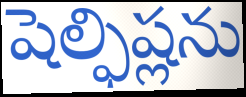
షెల్ఫిష్లను